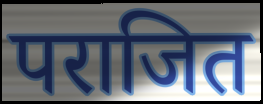
पराजित